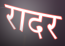
रादर